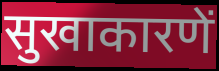
सुखाकारणें